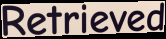
Retrieved